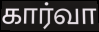
கார்வா